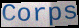
Corps